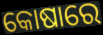
କୋଷାରେ